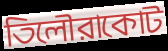
তিলৌরাকোট